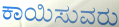
ಕಾಯಿಸುವರು